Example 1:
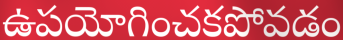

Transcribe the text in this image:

ఉపయోగించకపోవడం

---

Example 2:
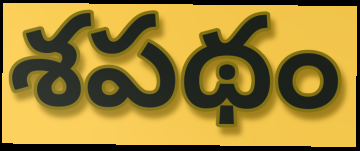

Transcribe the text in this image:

శపథం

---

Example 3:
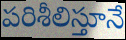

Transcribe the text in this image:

పరిశీలిస్తూనే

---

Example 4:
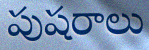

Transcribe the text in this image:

పుషరాలు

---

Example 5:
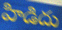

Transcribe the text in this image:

హిడిదు